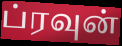
ப்ரவுன்